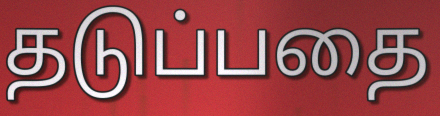
தடுப்பதை